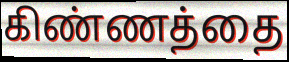
கிண்ணத்தை